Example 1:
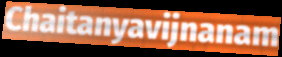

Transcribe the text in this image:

Chaitanyavijnanam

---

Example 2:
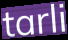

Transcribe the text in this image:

tarli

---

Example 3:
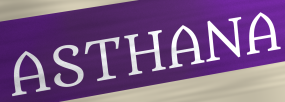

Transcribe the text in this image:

ASTHANA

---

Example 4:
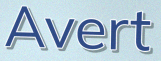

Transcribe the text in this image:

Avert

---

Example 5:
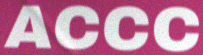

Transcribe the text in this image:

ACCC